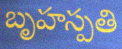
బృహస్పతి